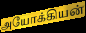
அயோக்கியன்